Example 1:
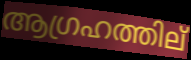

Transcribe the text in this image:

ആഗ്രഹത്തില്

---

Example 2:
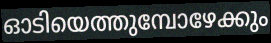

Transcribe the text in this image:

ഓടിയെത്തുമ്പോഴേക്കും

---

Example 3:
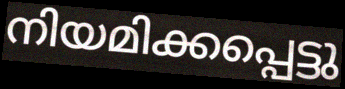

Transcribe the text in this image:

നിയമിക്കപ്പെട്ടു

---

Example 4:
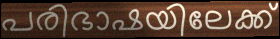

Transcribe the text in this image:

പരിഭാഷയിലേക്ക്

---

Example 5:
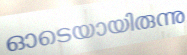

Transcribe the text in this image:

ഓടെയായിരുന്നു